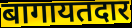
बागायतदार